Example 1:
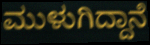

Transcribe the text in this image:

ಮುಳುಗಿದ್ದಾನೆ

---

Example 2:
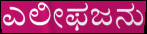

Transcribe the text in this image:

ಎಲೀಫಜನು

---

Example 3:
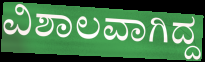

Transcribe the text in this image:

ವಿಶಾಲವಾಗಿದ್ದ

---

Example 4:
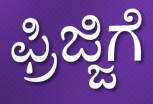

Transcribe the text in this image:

ಫ್ರಿಜ್ಜಿಗೆ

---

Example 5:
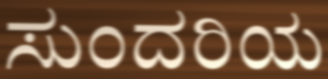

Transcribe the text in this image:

ಸುಂದರಿಯ